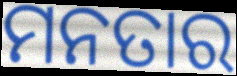
ମନତାର